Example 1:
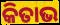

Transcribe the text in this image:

କିତାଭ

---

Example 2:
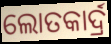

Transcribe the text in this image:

ଲୋତକାର୍ଦ୍ର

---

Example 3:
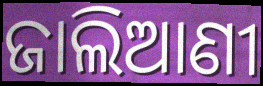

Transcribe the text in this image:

ଜାଲିଆଣୀ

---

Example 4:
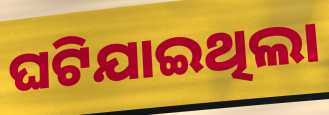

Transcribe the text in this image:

ଘଟିଯାଇଥିଲା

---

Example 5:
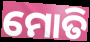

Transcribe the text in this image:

ମୋତି